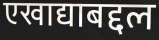
एखाद्याबद्दल